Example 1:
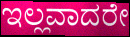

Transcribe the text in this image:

ಇಲ್ಲವಾದರೇ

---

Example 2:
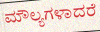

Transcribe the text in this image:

ಮೌಲ್ಯಗಳಾದರೆ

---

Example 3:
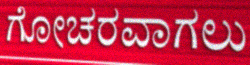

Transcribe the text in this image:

ಗೋಚರವಾಗಲು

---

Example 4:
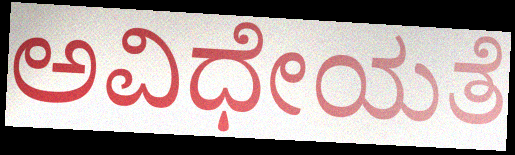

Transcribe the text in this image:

ಅವಿಧೇಯತೆ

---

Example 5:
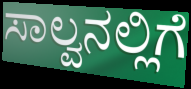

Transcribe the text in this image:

ಸಾಲ್ವನಲ್ಲಿಗೆ